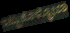
ಇಟ್ಟುಕೊಳ್ಳೋಣ